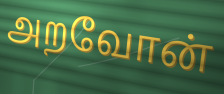
அறவோன்